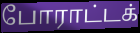
போராட்டக்